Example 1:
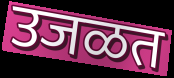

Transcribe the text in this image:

उजळत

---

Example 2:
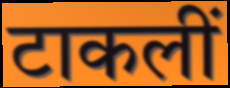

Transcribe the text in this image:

टाकलीं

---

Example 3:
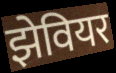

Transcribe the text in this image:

झेवियर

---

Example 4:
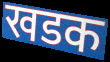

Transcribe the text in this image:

खडक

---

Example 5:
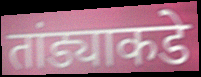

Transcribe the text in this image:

तांड्याकडे